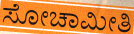
ಸೋಚಾಮೀತಿ